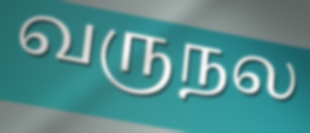
வருநல